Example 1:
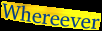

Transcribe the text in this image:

Whereever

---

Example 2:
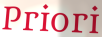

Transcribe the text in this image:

Priori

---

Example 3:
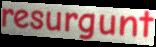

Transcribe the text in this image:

resurgunt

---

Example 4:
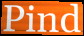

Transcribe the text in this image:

Pind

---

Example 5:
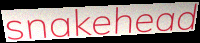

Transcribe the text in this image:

snakehead